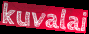
kuvalai